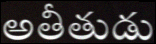
అతీతుడు